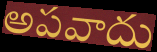
అపవాదు